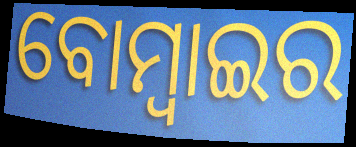
ବୋମ୍ବାଇର